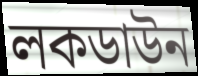
লকডাউন